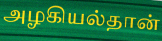
அழகியல்தான்